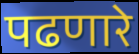
पढणारे